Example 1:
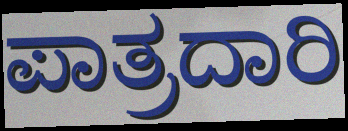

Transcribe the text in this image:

ಪಾತ್ರದಾರಿ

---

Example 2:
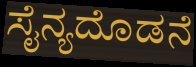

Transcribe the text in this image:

ಸೈನ್ಯದೊಡನೆ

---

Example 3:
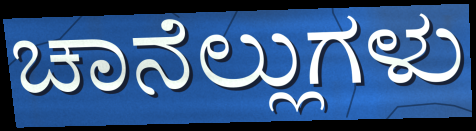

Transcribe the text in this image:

ಚಾನೆಲ್ಲುಗಳು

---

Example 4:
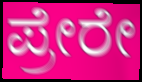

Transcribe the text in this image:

ಪ್ರೇರೇ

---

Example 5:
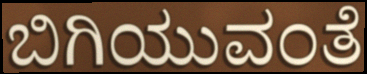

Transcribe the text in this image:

ಬಿಗಿಯುವಂತೆ